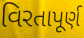
વિરતાપૂર્ણ